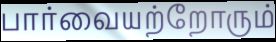
பார்வையற்றோரும்